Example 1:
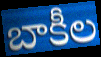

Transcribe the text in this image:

బాకీల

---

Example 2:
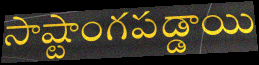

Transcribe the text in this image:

సాష్టాంగపడ్డాయి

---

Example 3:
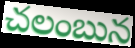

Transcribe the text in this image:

చలంబున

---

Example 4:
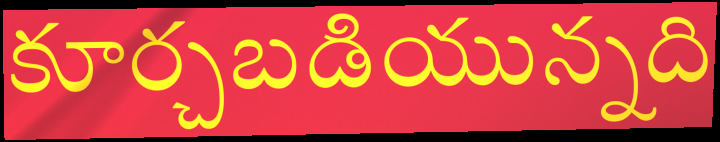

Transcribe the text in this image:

కూర్చబడియున్నది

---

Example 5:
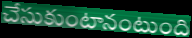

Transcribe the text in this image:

చేసుకుంటానంటుంది